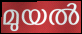
മുയൽ